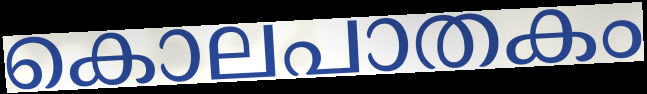
കൊലപാതകം